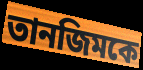
তানজিমকে